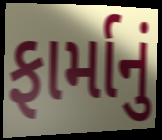
ફાર્માનું